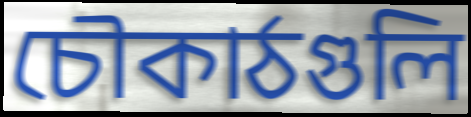
চৌকাঠগুলি